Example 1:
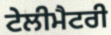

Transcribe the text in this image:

ਟੇਲੀਮੈਟਰੀ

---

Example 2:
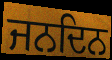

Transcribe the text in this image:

ਜਨਦਿਨ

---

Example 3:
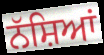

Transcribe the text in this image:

ਨੱਸ਼ਿਆਂ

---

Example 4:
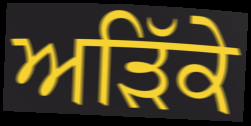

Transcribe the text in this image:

ਅੜਿੱਕੇ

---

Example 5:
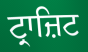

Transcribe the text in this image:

ਟ੍ਰਾਜ਼ਿਟ